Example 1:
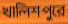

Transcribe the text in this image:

খালিশপুরে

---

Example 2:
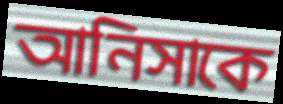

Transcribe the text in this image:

আনিসাকে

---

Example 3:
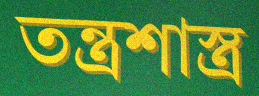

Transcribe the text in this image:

তন্ত্রশাস্ত্র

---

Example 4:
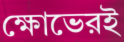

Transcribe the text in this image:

ক্ষোভেরই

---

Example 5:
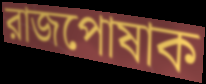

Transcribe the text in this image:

রাজপোষাক